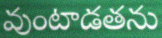
వుంటాడతను